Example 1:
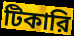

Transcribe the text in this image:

টিকারি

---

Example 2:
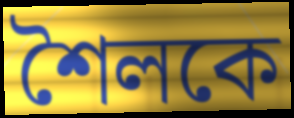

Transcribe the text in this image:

শৈলকে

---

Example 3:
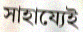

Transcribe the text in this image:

সাহায্যেই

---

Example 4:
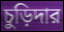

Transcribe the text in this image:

চুড়িদার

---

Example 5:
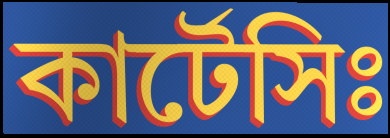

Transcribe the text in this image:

কার্টেসিঃ